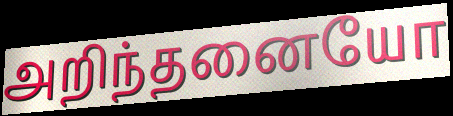
அறிந்தனையோ